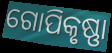
ଗୋପିକୃଷ୍ଣା